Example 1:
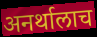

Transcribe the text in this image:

अनर्थालाच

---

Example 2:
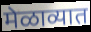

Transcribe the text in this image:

मेळाव्यात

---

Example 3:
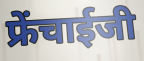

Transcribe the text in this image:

फ्रेंचाईजी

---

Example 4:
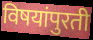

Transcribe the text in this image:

विषयांपुरती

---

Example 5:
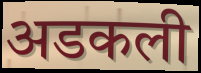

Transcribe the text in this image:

अडकली